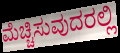
ಮೆಚ್ಚಿಸುವುದರಲ್ಲಿ